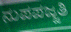
ನುಪಪಜ್ಜತಿ